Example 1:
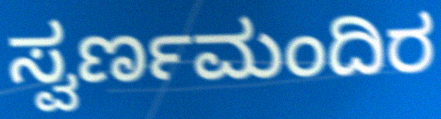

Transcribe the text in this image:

ಸ್ವರ್ಣಮಂದಿರ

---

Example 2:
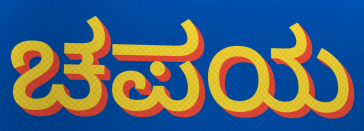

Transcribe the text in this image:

ಚಪಯ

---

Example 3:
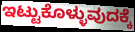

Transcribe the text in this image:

ಇಟ್ಟುಕೊಳ್ಳುವುದಕ್ಕೆ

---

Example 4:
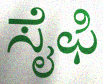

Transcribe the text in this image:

ಸೈಫಿ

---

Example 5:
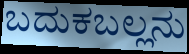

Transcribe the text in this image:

ಬದುಕಬಲ್ಲನು